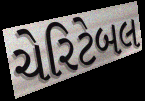
ચેરિટેબલ